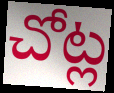
చోట్ల